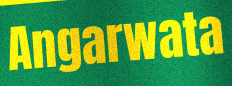
Angarwata